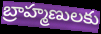
బ్రాహ్మణులకు